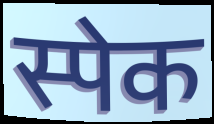
स्पेक